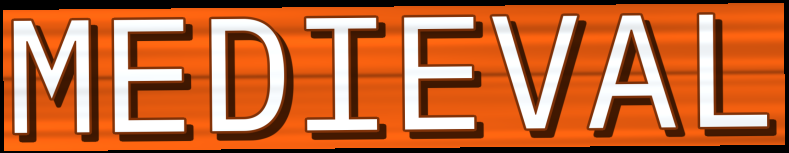
MEDIEVAL